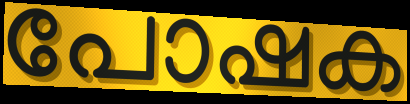
പോഷക